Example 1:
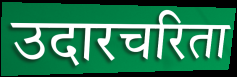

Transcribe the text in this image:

उदारचरिता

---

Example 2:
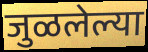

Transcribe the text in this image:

जुळलेल्या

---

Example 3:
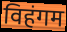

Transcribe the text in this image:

विहंगम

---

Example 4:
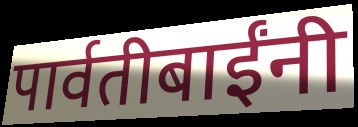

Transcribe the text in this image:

पार्वतीबाईंनी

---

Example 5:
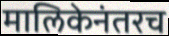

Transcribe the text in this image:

मालिकेनंतरच